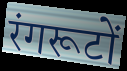
रंगरूटों